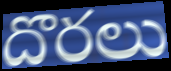
దొరలు